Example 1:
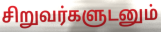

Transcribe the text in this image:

சிறுவர்களுடனும்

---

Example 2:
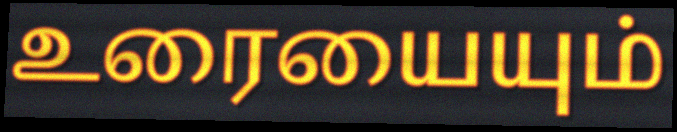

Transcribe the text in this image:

உரையையும்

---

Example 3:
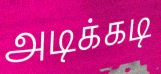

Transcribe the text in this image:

அடிக்கடி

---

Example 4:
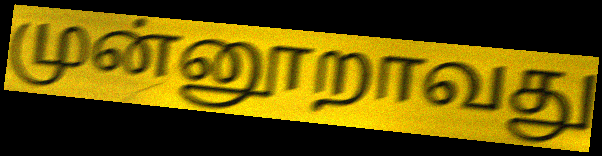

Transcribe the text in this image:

முன்னூறாவது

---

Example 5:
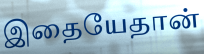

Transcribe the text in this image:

இதையேதான்